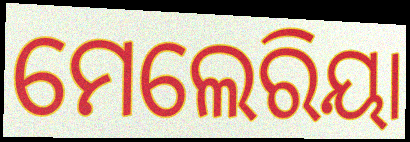
ମେଲେରିୟା